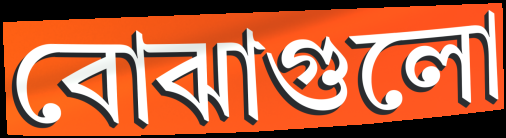
বোঝাগুলো